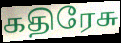
கதிரேசு